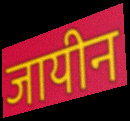
जायीन